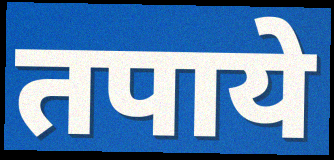
तपाये